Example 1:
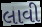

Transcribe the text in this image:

લાવી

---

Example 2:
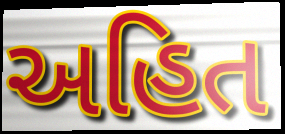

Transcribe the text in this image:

અહિત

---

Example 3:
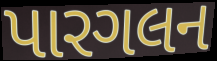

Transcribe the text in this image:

પારગલન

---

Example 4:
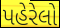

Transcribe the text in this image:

પહેરેલો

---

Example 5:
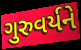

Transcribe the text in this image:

ગુરુવર્યને